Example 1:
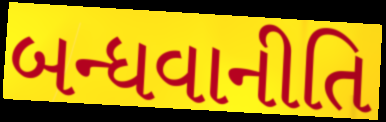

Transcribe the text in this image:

બન્ધવાનીતિ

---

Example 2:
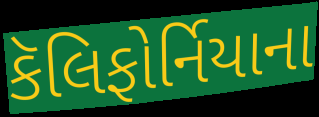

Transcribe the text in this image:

કૅલિફોર્નિયાના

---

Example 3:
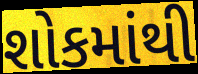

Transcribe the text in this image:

શોકમાંથી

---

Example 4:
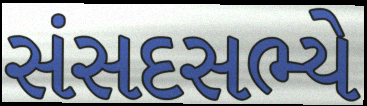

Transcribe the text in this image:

સંસદસભ્યે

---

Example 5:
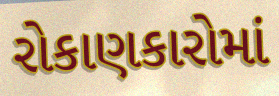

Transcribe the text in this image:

રોકાણકારોમાં